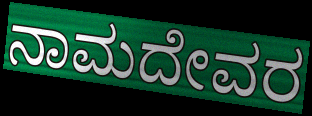
ನಾಮದೇವರ